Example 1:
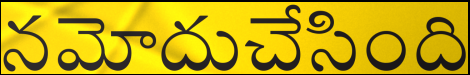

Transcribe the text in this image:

నమోదుచేసింది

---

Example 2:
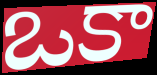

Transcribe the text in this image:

ఒకా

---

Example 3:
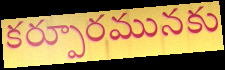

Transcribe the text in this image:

కర్పూరమునకు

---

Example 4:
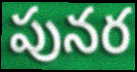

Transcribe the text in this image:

పునర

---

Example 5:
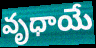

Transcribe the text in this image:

వృధాయే